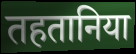
तहतानिया